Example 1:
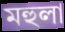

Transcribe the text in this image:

মহুলা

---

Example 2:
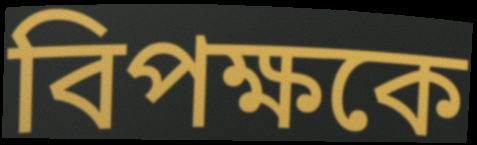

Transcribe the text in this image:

বিপক্ষকে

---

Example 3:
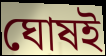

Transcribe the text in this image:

ঘোষই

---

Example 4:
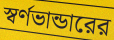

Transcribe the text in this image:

স্বর্ণভান্ডারের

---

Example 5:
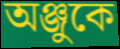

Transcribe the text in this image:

অঞ্জুকে